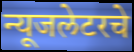
न्यूजलेटरचे